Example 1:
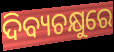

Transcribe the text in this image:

ଦିବ୍ୟଚକ୍ଷୁରେ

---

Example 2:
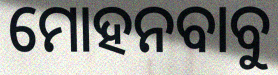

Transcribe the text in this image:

ମୋହନବାବୁ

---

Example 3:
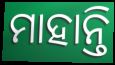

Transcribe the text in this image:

ମାହାନ୍ତି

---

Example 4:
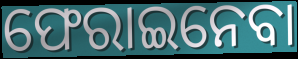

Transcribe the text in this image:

ଫେରାଇନେବା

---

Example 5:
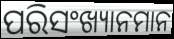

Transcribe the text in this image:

ପରିସଂଖ୍ୟାନମାନ